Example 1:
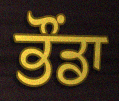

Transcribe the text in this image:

ਭੌਂਡਾ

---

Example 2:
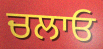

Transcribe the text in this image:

ਚਲਾਓ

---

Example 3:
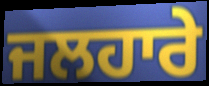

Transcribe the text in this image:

ਜਲਹਾਰੇ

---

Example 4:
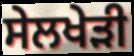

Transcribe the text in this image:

ਸੇਲਖੇੜੀ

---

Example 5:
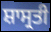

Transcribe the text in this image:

ਸ਼ਾਸ੍ਰਤੀ